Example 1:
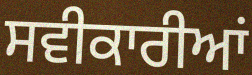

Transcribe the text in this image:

ਸਵੀਕਾਰੀਆਂ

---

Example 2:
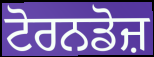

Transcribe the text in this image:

ਟੋਰਨਡੋਜ਼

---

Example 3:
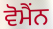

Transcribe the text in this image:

ਵੋਮੈਂਨ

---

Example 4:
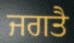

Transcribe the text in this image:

ਜਗਤੈ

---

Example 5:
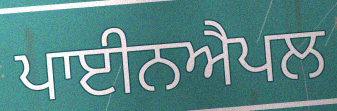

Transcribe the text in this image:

ਪਾਈਨਐਪਲ